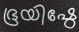
ഭൂയിഷ്ഠേ